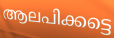
ആലപിക്കട്ടെ